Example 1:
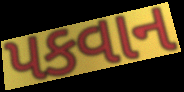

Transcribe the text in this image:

પકવાન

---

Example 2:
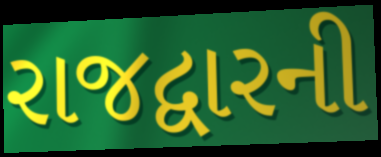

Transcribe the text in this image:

રાજદ્વારની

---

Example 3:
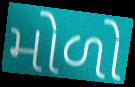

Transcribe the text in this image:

મોળો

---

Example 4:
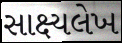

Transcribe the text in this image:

સાક્ષ્યલેખ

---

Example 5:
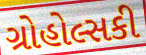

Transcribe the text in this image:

ગ્રોહોલ્સકી